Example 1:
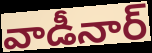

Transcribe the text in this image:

వాడీనార్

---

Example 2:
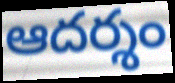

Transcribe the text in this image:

ఆదర్శం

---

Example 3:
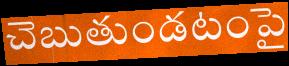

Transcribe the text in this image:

చెబుతుండటంపై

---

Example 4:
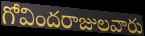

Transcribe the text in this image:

గోవిందరాజులవారు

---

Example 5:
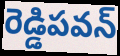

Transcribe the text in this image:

రెడ్డిపవన్